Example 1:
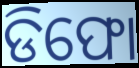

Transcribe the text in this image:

ଡିଫୋ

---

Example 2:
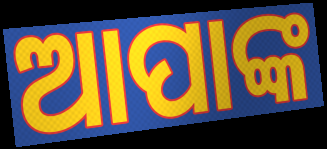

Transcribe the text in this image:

ଆପାଙ୍କ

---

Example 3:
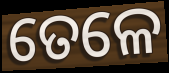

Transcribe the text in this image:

ତେଳେ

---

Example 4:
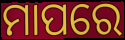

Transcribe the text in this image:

ମାପରେ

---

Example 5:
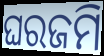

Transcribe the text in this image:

ଘରଜମି